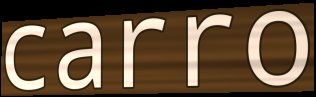
carro